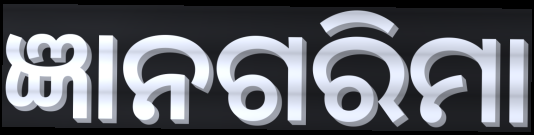
ଜ୍ଞାନଗରିମା